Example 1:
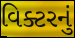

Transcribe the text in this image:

વિક્ટરનું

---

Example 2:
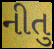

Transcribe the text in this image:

નીતુ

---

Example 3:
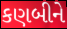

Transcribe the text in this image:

કણબીને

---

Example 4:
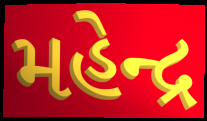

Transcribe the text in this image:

મહેન્દ્ર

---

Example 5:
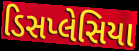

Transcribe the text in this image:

ડિસપ્લેસિયા